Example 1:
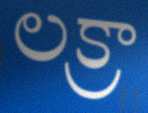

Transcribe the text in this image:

లక్రా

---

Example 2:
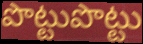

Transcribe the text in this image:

పొట్టుపొట్టు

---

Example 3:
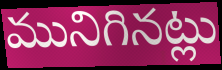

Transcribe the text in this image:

మునిగినట్లు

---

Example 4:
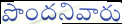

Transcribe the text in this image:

పొందనివారు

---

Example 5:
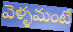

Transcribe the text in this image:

వెళ్ళమంటే